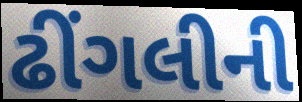
ઢીંગલીની